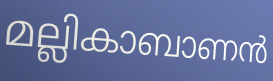
മല്ലികാബാണൻ